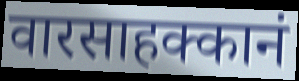
वारसाहक्कानं